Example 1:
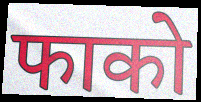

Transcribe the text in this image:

फाको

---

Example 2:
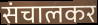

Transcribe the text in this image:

संचालकर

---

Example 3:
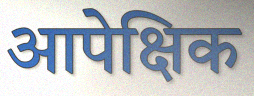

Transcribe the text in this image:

आपेक्षिक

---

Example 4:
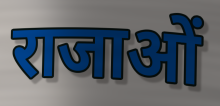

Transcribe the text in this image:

राजाओं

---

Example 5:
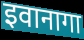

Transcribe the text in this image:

इवानागा